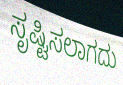
ಸೃಷ್ಟಿಸಲಾಗದು